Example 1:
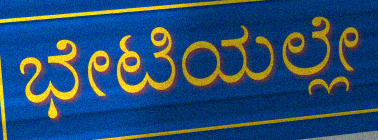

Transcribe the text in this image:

ಭೇಟಿಯಲ್ಲೇ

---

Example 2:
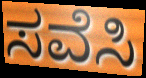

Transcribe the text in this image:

ಸವೆಸಿ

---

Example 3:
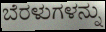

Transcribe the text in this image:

ಬೆರಳುಗಳನ್ನು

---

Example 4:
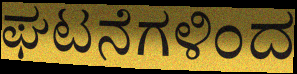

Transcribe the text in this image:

ಘಟನೆಗಳಿಂದ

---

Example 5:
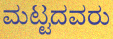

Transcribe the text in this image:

ಮಟ್ಟದವರು